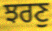
ਝਰਣੁ